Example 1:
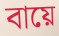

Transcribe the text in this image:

বায়ে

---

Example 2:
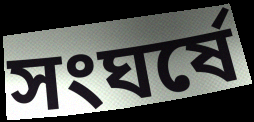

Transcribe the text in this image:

সংঘর্ষে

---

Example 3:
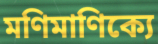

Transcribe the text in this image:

মণিমাণিক্যে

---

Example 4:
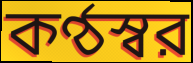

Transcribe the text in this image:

কণ্ঠস্বর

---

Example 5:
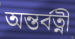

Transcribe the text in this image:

অন্তর্বত্নী